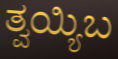
ತ್ವಯ್ಯಿಬ